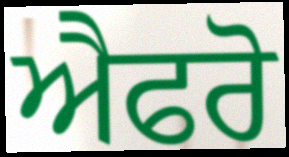
ਐਫਰੋ